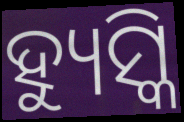
ହ୍ୟୁସ୍କି